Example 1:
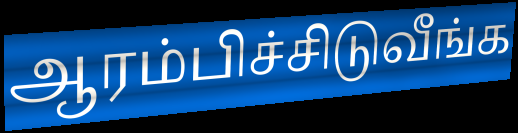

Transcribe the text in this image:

ஆரம்பிச்சிடுவீங்க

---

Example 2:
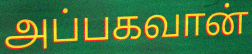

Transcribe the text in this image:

அப்பகவான்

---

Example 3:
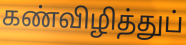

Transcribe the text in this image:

கண்விழித்துப்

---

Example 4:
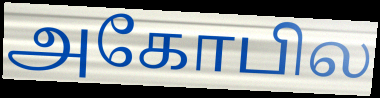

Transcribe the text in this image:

அகோபில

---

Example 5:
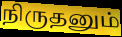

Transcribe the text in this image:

நிருதனும்